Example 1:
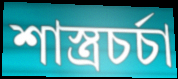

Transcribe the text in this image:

শাস্ত্রচর্চা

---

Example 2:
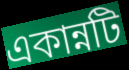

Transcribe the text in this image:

একান্নটি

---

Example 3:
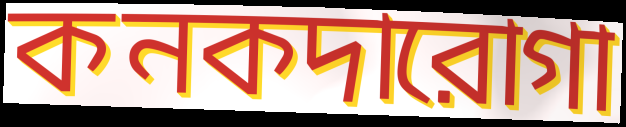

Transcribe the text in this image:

কনকদারোগা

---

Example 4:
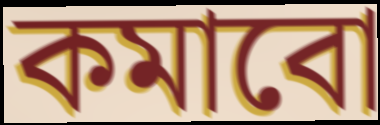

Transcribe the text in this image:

কমাবো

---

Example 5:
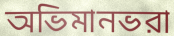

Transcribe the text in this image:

অভিমানভরা